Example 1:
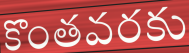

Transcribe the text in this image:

కొంతవరకు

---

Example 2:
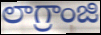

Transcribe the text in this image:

లాగ్రాంజి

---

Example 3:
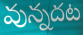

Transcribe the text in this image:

వున్నదట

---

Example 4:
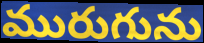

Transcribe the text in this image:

మురుగును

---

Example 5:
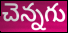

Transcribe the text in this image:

చెన్నగు